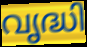
വൃദ്ധി